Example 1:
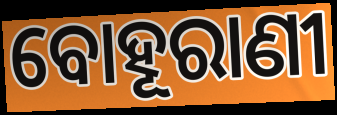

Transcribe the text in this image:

ବୋହୂରାଣୀ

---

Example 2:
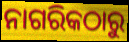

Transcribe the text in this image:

ନାଗରିକଠାରୁ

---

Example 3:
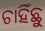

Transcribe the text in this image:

ଚାହିଁଛୁ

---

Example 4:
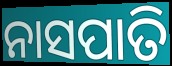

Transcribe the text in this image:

ନାସପାତି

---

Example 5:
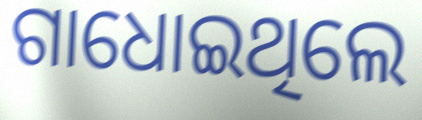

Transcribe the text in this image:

ଗାଧୋଇଥିଲେ